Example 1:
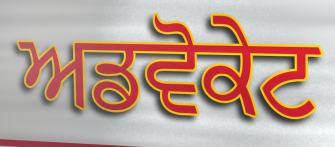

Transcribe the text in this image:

ਅਡਵੋਕੇਟ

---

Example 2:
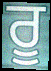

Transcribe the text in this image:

ਰੂ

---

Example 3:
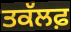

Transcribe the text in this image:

ਤਕੱਲਫ਼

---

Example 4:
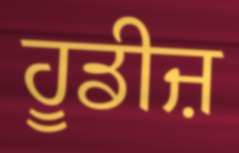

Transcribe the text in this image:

ਹੂਡੀਜ਼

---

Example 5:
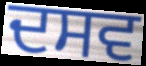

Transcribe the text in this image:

ਦਸਵ